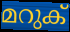
മറുക്